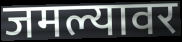
जमल्यावर